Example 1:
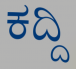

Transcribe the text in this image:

ಕದ್ದಿ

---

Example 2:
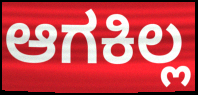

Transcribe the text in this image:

ಆಗಕಿಲ್ಲ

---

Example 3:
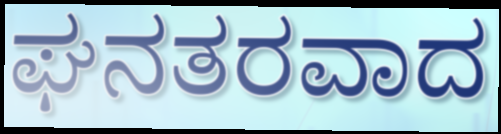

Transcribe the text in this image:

ಘನತರವಾದ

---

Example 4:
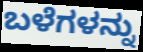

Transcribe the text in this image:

ಬಳೆಗಳನ್ನು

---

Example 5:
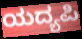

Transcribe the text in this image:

ಯದ್ಯಪಿ